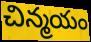
చిన్మయం